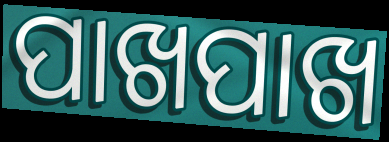
ପାଖପାଖ